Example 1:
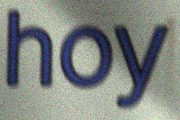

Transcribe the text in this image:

hoy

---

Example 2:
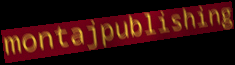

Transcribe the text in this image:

montajpublishing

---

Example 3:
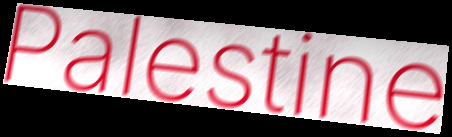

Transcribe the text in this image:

Palestine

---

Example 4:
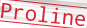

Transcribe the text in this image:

Proline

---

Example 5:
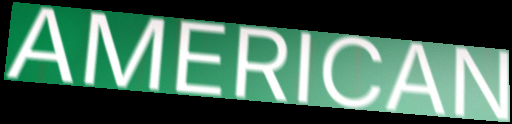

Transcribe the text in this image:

AMERICAN